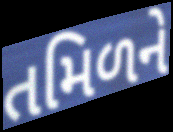
તમિળને